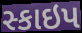
સ્કાઇપ